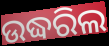
ଉଦ୍ଧରିଲ